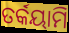
ତର୍କୟାମି